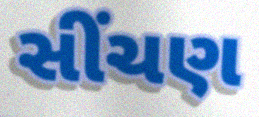
સીંચણ